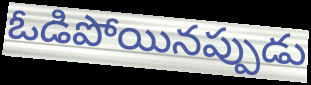
ఓడిపోయినప్పుడు